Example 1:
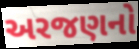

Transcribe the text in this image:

અરજણનો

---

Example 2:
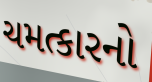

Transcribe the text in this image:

ચમત્કારનો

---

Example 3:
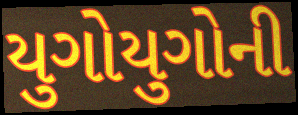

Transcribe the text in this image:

યુગોયુગોની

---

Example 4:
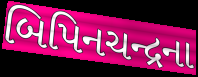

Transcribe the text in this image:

બિપિનચન્દ્રના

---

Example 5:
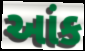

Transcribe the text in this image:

આંક